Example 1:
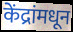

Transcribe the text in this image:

केंद्रांमधून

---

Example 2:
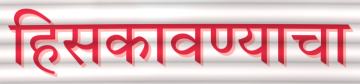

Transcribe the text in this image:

हिसकावण्याचा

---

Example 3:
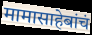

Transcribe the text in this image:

मामासाहेबांचं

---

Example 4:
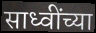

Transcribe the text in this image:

साध्वींच्या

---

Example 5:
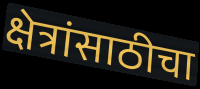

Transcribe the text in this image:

क्षेत्रांसाठीचा